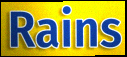
Rains